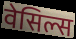
वेसिल्स